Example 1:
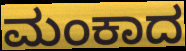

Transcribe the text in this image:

ಮಂಕಾದ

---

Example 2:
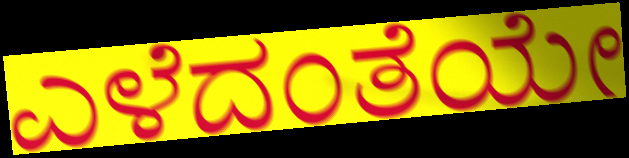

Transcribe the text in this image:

ಎಳೆದಂತೆಯೇ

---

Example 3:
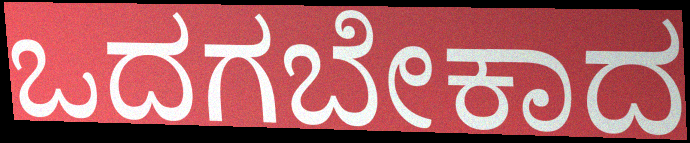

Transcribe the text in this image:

ಒದಗಬೇಕಾದ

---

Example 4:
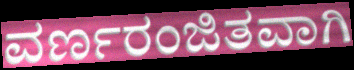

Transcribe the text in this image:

ವರ್ಣರಂಜಿತವಾಗಿ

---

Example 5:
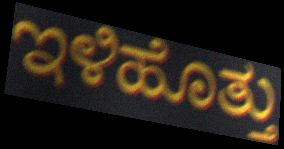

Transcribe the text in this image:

ಇಳಿಹೊತ್ತು